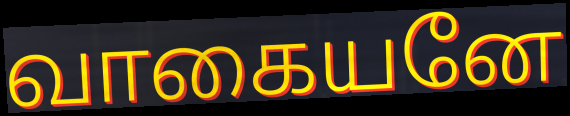
வாகையனே